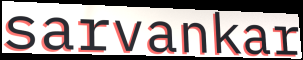
sarvankar